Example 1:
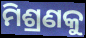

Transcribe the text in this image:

ମିଶ୍ରଣକୁ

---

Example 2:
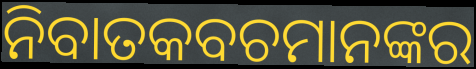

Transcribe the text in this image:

ନିବାତକବଚମାନଙ୍କର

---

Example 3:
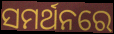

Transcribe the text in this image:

ସମର୍ଥନରେ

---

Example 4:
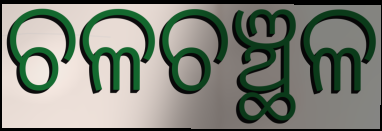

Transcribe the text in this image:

ଚଳଚଞ୍ଛଳ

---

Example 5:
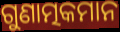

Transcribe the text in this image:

ଗୁଣାତ୍ମକମାନ